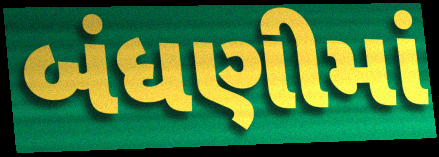
બંધણીમાં